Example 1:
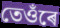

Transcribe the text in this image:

তেওঁৰে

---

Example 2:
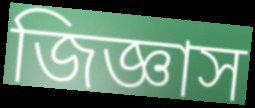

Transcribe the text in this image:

জিজ্ঞাস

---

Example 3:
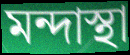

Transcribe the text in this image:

মন্দাস্থা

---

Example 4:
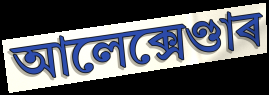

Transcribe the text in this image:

আলেক্সেণ্ডাৰ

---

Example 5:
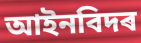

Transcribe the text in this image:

আইনবিদৰ